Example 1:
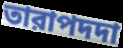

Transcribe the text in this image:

তারাপদদা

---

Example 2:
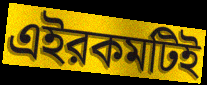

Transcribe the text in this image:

এইরকমটিই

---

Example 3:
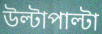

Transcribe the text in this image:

উল্টাপাল্টা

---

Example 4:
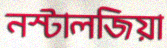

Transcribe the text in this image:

নস্টালজিয়া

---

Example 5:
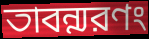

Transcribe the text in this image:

তাবন্মরণং